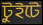
টুইটে